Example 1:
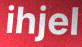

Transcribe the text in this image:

ihjel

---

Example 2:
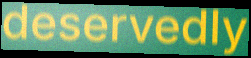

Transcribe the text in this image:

deservedly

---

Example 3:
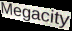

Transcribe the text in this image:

Megacity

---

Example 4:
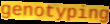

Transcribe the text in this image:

genotyping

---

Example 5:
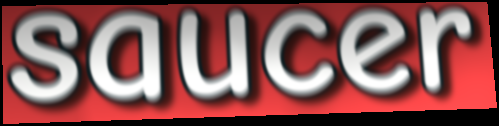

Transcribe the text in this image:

saucer